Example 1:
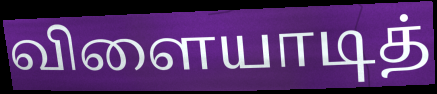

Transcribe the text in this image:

விளையாடித்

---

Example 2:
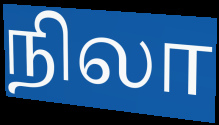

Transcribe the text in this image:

நிலா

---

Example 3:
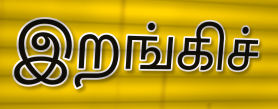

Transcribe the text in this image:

இறங்கிச்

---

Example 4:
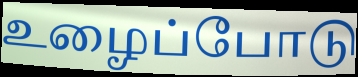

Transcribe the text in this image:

உழைப்போடு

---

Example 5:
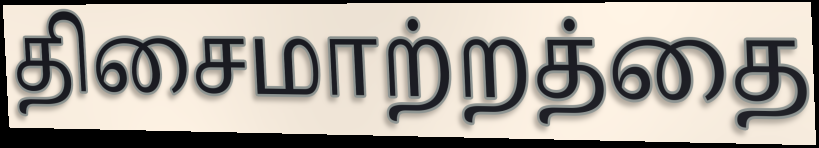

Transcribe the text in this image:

திசைமாற்றத்தை